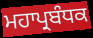
ਮਹਾਪ੍ਰਬੰਧਕ